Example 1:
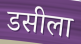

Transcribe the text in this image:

डसीला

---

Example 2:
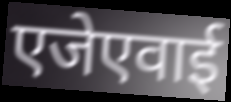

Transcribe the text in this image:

एजेएवाई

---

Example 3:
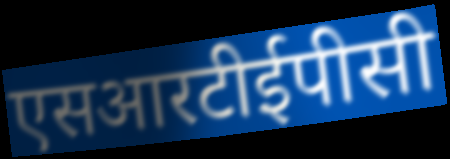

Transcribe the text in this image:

एसआरटीईपीसी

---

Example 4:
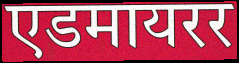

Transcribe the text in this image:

एडमायरर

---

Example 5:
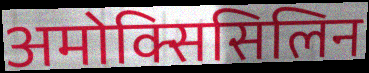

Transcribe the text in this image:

अमोक्सिसिलिन